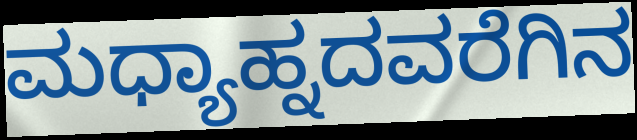
ಮಧ್ಯಾಹ್ನದವರೆಗಿನ